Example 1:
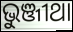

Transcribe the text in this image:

ଭୁଞ୍ଜୀଥା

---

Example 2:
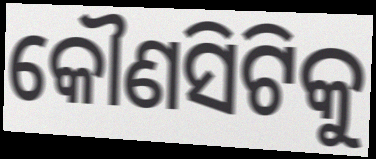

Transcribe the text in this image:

କୌଣସିଟିକୁ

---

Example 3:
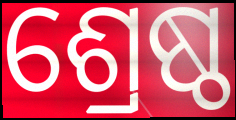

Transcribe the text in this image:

ଶ୍ରେଷ୍ଠ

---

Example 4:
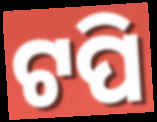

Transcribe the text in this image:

ଟପି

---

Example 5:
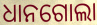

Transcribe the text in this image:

ଧାନଗୋଲା